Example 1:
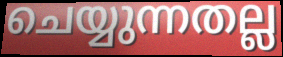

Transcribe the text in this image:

ചെയ്യുന്നതല്ല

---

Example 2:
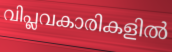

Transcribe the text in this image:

വിപ്ലവകാരികളിൽ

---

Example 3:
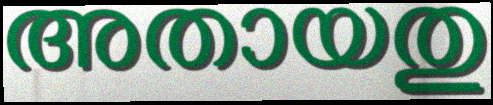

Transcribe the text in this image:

അതായതു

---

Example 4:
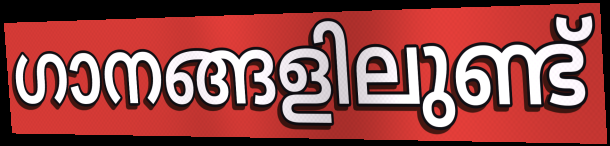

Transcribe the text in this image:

ഗാനങ്ങളിലുണ്ട്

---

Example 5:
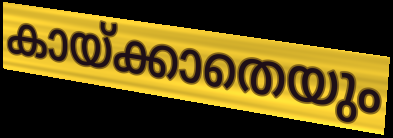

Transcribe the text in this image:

കായ്ക്കാതെയും